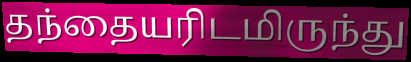
தந்தையரிடமிருந்து